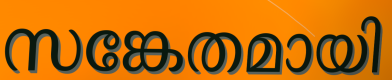
സങ്കേതമായി